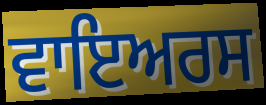
ਵਾਇਅਰਸ